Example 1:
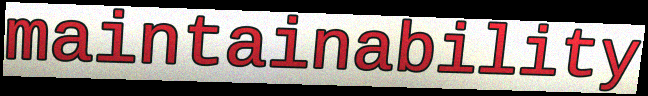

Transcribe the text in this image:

maintainability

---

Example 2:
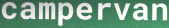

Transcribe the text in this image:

campervan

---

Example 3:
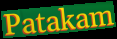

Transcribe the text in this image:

Patakam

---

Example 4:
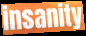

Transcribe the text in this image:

insanity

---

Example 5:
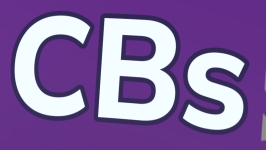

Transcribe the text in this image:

CBs